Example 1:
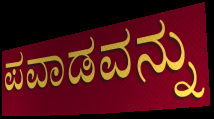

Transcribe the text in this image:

ಪವಾಡವನ್ನು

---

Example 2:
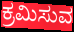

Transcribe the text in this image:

ಕ್ರಮಿಸುವ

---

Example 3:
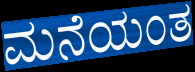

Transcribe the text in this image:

ಮನೆಯಂತ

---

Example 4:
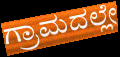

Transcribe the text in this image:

ಗ್ರಾಮದಲ್ಲೇ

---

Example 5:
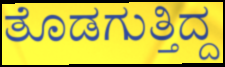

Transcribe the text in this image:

ತೊಡಗುತ್ತಿದ್ದ